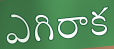
ఎగిరాక